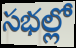
సభల్లో